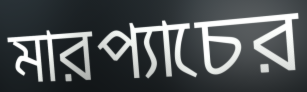
মারপ্যাচের